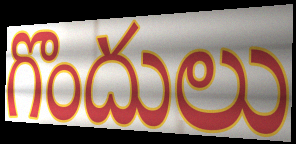
గొందులు